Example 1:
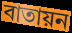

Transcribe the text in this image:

বাতায়ন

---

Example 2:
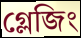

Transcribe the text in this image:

গ্লেজিং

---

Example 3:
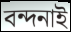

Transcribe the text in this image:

বন্দনাই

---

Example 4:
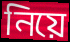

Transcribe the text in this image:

নিয়ে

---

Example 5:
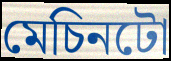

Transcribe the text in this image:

মেচিনটো